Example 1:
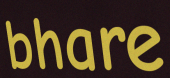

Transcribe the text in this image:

bhare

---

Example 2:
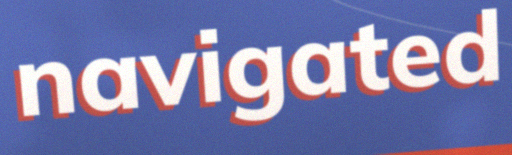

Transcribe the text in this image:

navigated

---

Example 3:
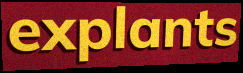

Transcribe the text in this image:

explants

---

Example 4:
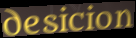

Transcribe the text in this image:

desicion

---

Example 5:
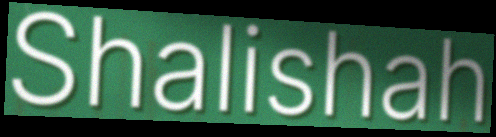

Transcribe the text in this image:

Shalishah